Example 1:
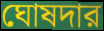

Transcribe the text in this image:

ঘোষদার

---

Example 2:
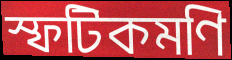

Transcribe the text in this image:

স্ফটিকমণি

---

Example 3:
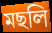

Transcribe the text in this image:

মছলি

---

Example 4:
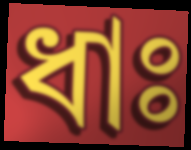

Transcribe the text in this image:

ধাঃ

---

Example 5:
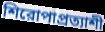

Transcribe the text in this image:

শিরোপাপ্রত্যাশী